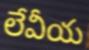
లేవీయ